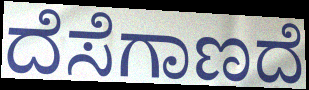
ದೆಸೆಗಾಣದೆ